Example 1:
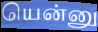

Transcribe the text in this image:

யென்னு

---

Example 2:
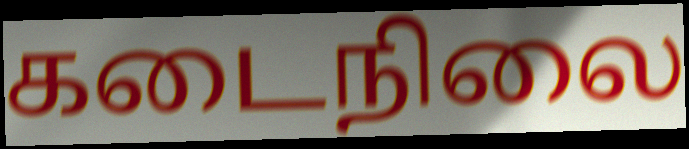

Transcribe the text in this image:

கடைநிலை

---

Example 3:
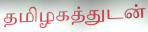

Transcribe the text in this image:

தமிழகத்துடன்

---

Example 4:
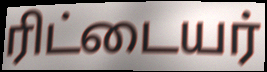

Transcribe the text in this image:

ரிட்டையர்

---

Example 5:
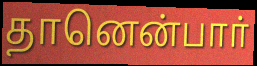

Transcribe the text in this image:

தானென்பார்